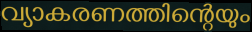
വ്യാകരണത്തിന്റെയും